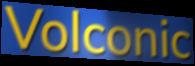
Volconic